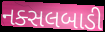
નક્સલબાડી